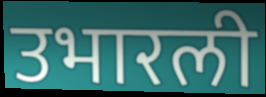
उभारली